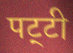
पट्‌टी